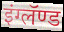
इंग्लॅण्ड